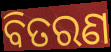
ବିତରଣ